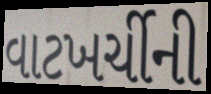
વાટખર્ચીની